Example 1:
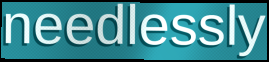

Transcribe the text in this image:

needlessly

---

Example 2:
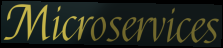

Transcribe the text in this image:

Microservices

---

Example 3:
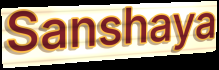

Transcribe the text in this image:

Sanshaya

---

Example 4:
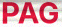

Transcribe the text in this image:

PAG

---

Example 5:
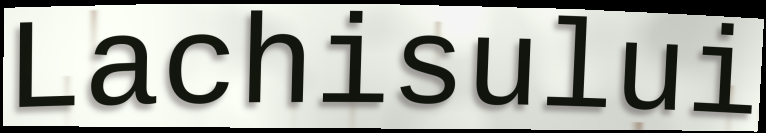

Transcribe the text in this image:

Lachisului